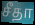
சீதா